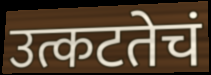
उत्कटतेचं